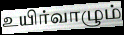
உயிர்வாழும்